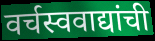
वर्चस्ववाद्यांची